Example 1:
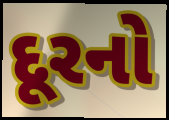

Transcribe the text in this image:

દૂરનો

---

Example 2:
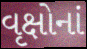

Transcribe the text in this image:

વૃક્ષોનાં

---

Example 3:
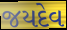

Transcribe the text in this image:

જયદેવ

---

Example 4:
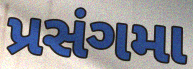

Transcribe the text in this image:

પ્રસંગમા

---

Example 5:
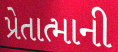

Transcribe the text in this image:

પ્રેતાત્માની